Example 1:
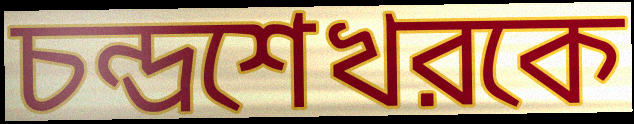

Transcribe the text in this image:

চন্দ্রশেখরকে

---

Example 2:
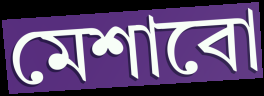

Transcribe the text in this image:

মেশাবো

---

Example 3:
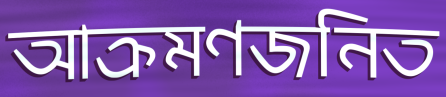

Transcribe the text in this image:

আক্রমণজনিত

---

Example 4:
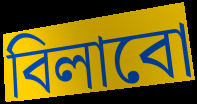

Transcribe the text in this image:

বিলাবো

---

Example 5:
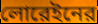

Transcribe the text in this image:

লোরেইনের